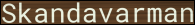
Skandavarman